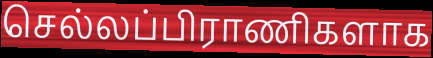
செல்லப்பிராணிகளாக